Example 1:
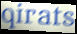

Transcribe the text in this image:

qirats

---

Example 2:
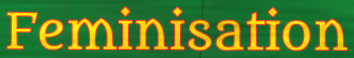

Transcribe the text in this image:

Feminisation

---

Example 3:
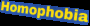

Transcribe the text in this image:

Homophobia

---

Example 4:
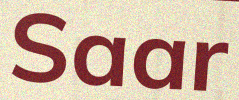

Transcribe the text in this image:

Saar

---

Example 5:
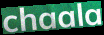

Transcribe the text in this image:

chaala